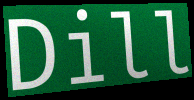
Dill